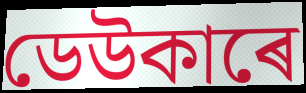
ডেউকাৰে